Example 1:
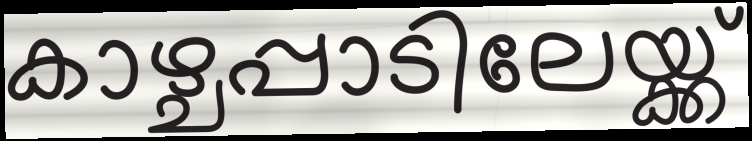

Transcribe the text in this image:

കാഴ്ചപ്പാടിലേയ്ക്ക്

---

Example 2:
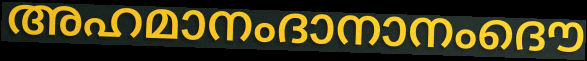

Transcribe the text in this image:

അഹമാനംദാനാനംദൌ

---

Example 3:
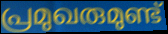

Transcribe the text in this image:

പ്രമുഖരുമുണ്ട്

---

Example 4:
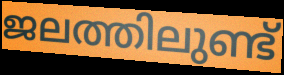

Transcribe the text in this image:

ജലത്തിലുണ്ട്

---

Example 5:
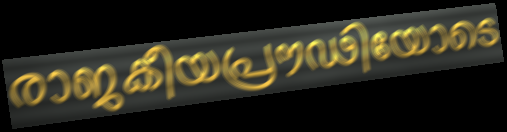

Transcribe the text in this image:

രാജകീയപ്രൗഢിയോടെ